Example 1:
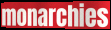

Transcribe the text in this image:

monarchies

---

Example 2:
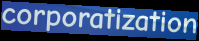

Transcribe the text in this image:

corporatization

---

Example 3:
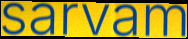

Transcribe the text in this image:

sarvam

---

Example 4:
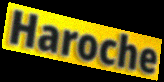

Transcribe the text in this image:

Haroche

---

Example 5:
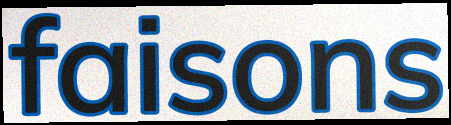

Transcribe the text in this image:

faisons